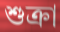
শুক্ৰা